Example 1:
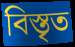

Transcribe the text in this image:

বিস্তৃত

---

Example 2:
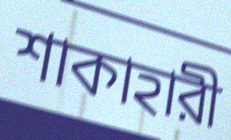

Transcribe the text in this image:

শাকাহারী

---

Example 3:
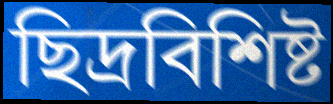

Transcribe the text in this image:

ছিদ্রবিশিষ্ট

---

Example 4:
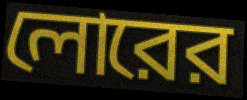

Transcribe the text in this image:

লোরের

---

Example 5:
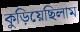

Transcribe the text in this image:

কুড়িয়েছিলাম